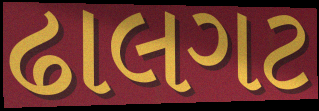
ઢાલગટ